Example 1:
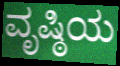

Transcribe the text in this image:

ವೃಷ್ಠಿಯ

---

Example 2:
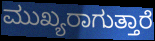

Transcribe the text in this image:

ಮುಖ್ಯರಾಗುತ್ತಾರೆ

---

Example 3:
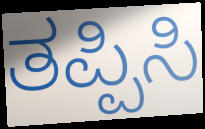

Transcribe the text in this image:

ತಪ್ಪಿಸಿ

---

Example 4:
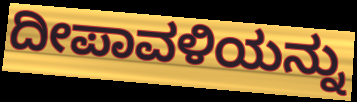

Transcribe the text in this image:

ದೀಪಾವಳಿಯನ್ನು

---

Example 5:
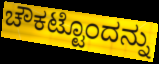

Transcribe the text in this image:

ಚೌಕಟ್ಟೊಂದನ್ನು